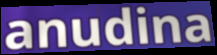
anudina